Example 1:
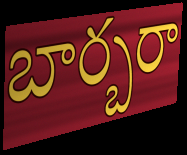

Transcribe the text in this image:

బార్బరా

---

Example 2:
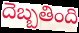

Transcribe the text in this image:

దెబ్బతింది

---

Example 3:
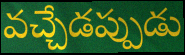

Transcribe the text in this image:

వచ్చేడప్పుడు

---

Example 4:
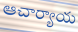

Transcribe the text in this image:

ఆచార్యాయ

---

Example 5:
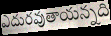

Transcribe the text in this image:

ఎదురవుతాయన్నది